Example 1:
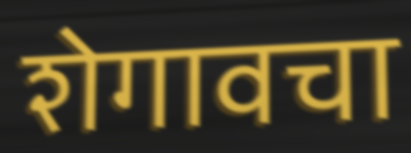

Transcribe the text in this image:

शेगावचा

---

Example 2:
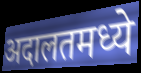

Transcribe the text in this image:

अदालतमध्ये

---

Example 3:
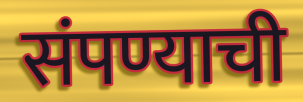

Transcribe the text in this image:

संपण्याची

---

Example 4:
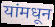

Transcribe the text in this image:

यांमधून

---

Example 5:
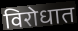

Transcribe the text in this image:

विरोधात